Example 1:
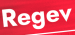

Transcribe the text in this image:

Regev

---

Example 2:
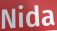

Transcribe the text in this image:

Nida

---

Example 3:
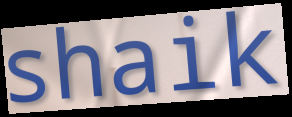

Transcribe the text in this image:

shaik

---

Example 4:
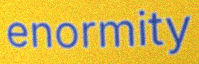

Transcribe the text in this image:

enormity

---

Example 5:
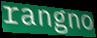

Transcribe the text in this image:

rangno